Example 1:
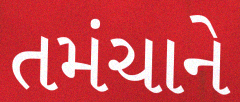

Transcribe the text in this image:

તમંચાને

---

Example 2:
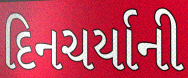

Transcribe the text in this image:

દિનચર્યાની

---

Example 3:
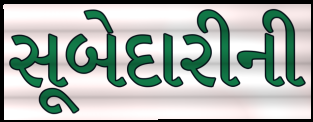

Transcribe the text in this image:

સૂબેદારીની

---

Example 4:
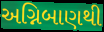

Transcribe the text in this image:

અગ્નિબાણથી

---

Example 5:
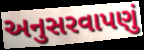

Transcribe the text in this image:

અનુસરવાપણું